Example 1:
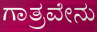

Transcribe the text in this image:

ಗಾತ್ರವೇನು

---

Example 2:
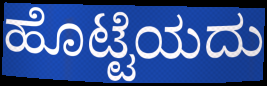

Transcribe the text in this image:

ಹೊಟ್ಟೆಯದು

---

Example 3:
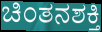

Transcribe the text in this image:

ಚಿಂತನಶಕ್ತಿ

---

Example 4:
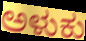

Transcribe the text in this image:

ಅಳುಕು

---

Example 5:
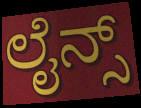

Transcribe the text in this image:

ಲೈನ್ಸ್